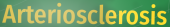
Arteriosclerosis